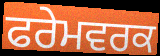
ਫਰੇਮਵਰਕ